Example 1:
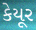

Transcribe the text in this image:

કેયૂર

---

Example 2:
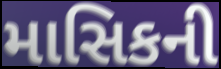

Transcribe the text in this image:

માસિકની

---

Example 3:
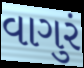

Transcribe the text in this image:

વાગુરં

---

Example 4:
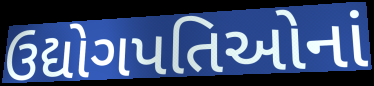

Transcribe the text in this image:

ઉદ્યોગપતિઓનાં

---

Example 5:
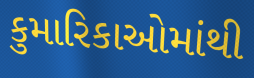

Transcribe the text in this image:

કુમારિકાઓમાંથી